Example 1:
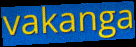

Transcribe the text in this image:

vakanga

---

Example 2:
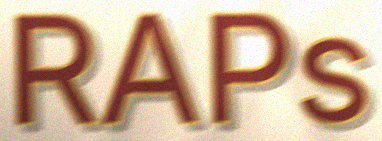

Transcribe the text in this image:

RAPs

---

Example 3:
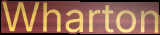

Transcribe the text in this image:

Wharton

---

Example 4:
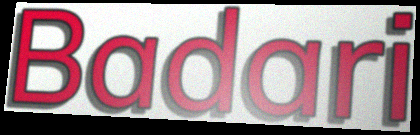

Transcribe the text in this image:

Badari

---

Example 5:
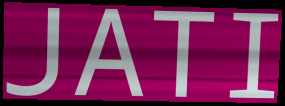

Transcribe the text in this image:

JATI